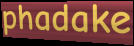
phadake